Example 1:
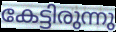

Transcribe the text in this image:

കേട്ടിരുന്നു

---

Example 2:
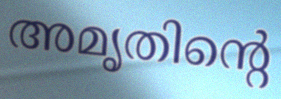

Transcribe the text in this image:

അമൃതിന്റെ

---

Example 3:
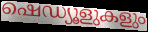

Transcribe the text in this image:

ഷെഡ്യൂളുകളും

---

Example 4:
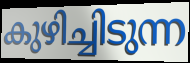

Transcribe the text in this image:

കുഴിച്ചിടുന്ന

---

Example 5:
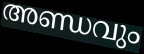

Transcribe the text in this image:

അണ്ഡവും